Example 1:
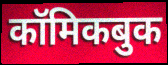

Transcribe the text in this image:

कॉमिकबुक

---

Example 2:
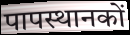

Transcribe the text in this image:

पापस्थानकों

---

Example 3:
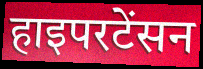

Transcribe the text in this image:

हाइपरटेंसन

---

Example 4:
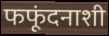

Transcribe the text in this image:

फफूंदनाशी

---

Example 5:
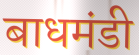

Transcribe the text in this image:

बाधमंडी